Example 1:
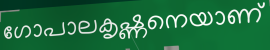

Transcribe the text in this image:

ഗോപാലകൃഷ്ണനെയാണ്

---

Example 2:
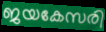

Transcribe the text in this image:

ജയകേസരി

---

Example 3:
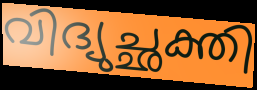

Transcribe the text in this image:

വിദ്യുച്ഛക്തി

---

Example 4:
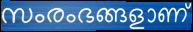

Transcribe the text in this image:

സംരംഭങ്ങളാണ്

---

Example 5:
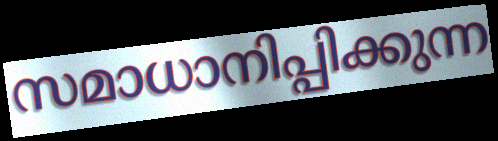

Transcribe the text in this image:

സമാധാനിപ്പിക്കുന്ന